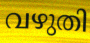
വഴുതി